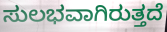
ಸುಲಭವಾಗಿರುತ್ತದೆ